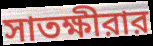
সাতক্ষীরার